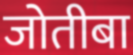
जोतीबा